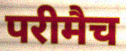
परीमैच